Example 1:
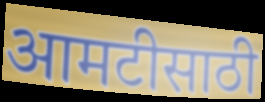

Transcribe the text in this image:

आमटीसाठी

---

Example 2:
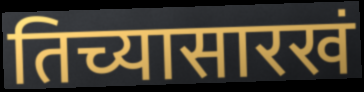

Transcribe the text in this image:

तिच्यासारखं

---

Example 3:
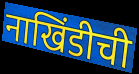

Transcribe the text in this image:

नाखिंडीची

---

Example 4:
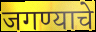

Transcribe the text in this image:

जगण्याचे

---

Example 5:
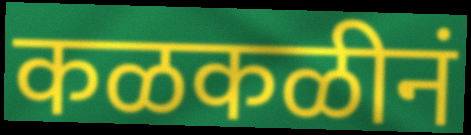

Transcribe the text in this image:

कळकळीनं